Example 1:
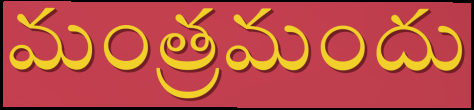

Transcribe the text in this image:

మంత్రమందు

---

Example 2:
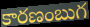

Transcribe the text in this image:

కారణంబుగ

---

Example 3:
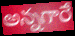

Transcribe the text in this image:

అన్నగారే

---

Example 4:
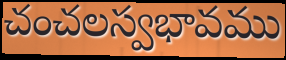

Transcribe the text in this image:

చంచలస్వభావము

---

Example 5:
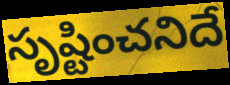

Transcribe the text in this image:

సృష్టించనిదే